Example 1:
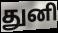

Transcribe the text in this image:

துனி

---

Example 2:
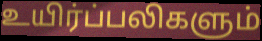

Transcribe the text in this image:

உயிர்ப்பலிகளும்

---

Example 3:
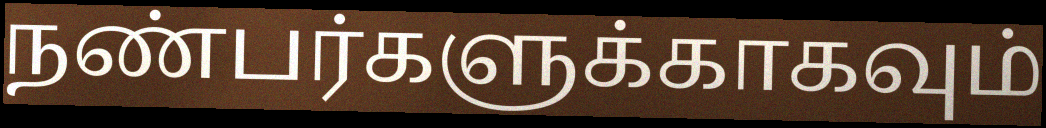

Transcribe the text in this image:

நண்பர்களுக்காகவும்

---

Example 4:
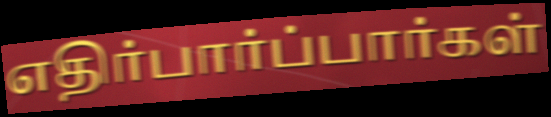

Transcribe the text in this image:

எதிர்பார்ப்பார்கள்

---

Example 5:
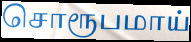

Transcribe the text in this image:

சொரூபமாய்